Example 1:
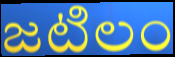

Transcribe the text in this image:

జటిలం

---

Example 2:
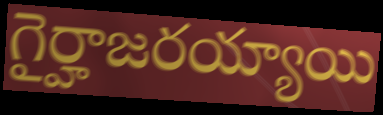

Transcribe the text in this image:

గైర్హాజరయ్యాయి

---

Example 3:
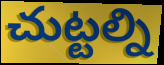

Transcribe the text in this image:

చుట్టల్ని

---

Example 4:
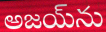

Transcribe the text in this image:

అజయ్‌ను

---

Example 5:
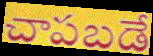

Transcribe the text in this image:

చాపబడే